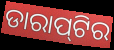
ଡାରାପ୍‌ଟିର